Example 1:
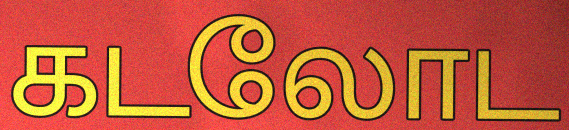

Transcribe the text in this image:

கடலோட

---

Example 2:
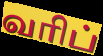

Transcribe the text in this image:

வரிப்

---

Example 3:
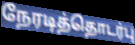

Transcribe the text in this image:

நேரடித்தொடர்பு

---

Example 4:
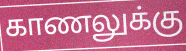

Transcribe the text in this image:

காணலுக்கு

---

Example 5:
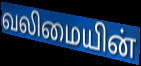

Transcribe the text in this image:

வலிமையின்